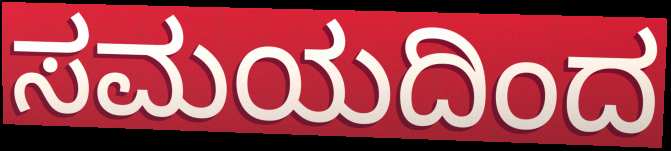
ಸಮಯದಿಂದ